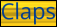
Claps